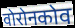
वोरोनकोव